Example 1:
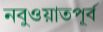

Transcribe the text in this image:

নবুওয়াতপূর্ব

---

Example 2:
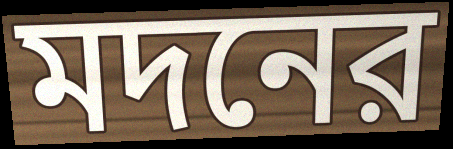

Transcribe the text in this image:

মদনের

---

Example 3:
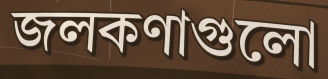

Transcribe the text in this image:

জলকণাগুলো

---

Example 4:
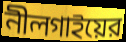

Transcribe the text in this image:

নীলগাইয়ের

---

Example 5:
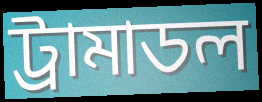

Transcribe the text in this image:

ট্রামাডল